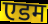
एडम